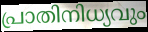
പ്രാതിനിധ്യവും